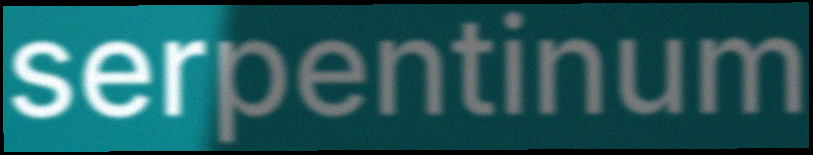
serpentinum